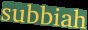
subbiah